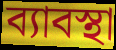
ব্যাবস্থা